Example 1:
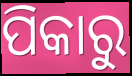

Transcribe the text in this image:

ପିକାରୁ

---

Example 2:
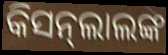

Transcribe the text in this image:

କିସନ୍‌ଲାଲଙ୍କ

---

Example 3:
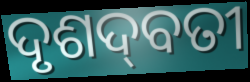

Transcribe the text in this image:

ଦୃଶଦ୍‌ବତୀ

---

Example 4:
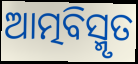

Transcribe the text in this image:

ଆତ୍ମବିସ୍ମୃତ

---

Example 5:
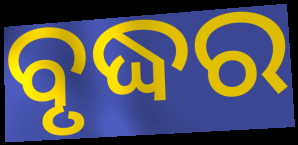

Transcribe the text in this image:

ବୃଦ୍ଧର